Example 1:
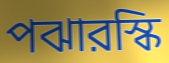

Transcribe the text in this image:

পঝারস্কি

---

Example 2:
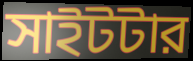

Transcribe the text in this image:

সাইটটার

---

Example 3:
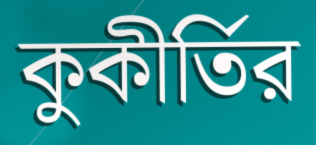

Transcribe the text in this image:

কুকীর্তির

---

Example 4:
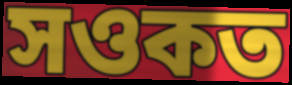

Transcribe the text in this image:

সওকত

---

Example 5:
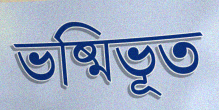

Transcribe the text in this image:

ভষ্মিভূত